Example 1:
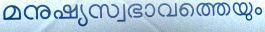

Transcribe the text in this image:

മനുഷ്യസ്വഭാവത്തെയും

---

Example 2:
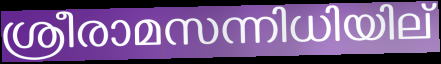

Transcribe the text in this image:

ശ്രീരാമസന്നിധിയില്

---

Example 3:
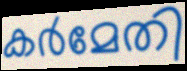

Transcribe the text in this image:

കർമേതി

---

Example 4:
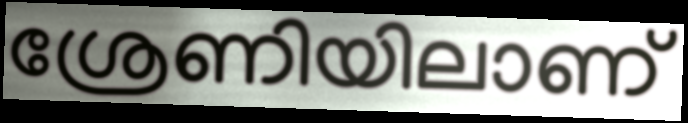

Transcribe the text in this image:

ശ്രേണിയിലാണ്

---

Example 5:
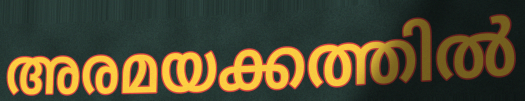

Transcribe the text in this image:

അരമയക്കത്തിൽ